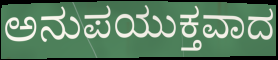
ಅನುಪಯುಕ್ತವಾದ